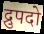
द्रुपदो